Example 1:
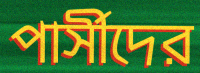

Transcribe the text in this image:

পার্সীদের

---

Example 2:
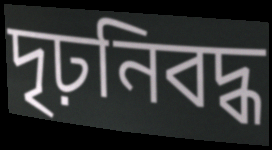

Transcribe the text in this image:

দৃঢ়নিবদ্ধ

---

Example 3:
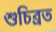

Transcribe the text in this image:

শুচিব্রত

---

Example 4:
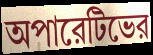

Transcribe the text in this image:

অপারেটিভের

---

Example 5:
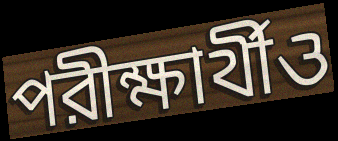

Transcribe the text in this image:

পরীক্ষার্থীও